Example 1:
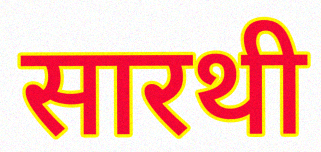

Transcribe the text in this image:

सारथी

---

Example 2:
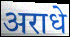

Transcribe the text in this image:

अराधे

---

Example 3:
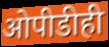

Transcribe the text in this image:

ओपीडीही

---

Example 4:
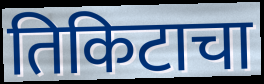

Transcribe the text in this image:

तिकिटाचा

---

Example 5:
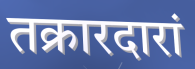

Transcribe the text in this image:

तक्रारदारां